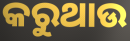
କରୁଥାଉ